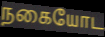
நகையோட